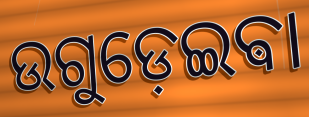
ଉଗୁଡ଼େଇଵା